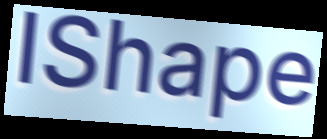
IShape